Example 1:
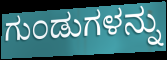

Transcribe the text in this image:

ಗುಂಡುಗಳನ್ನು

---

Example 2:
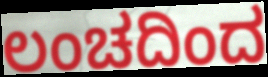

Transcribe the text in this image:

ಲಂಚದಿಂದ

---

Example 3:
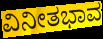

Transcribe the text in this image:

ವಿನೀತಭಾವ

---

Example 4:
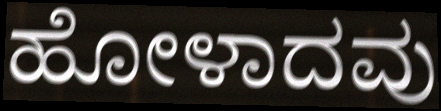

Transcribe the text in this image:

ಹೋಳಾದವು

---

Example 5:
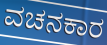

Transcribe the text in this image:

ವಚನಕಾರ